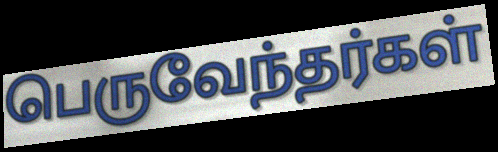
பெருவேந்தர்கள்